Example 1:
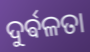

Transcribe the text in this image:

ଦୁର୍ଵଳତା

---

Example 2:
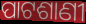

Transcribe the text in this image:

ପାଟଶାଣୀ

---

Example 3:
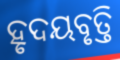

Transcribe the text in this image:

ହୃଦୟବୃତ୍ତି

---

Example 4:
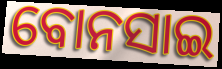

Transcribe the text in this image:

ବୋନସାଇ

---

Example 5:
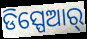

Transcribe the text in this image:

ଡିସ୍ପେଆର୍